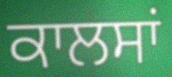
ਕਾਲਸਾਂ